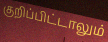
குறிப்பிட்டாலும்